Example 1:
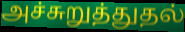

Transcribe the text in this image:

அச்சுறுத்துதல்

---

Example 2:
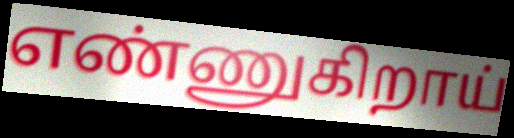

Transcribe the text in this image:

எண்ணுகிறாய்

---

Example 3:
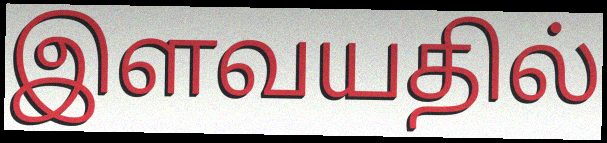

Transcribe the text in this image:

இளவயதில்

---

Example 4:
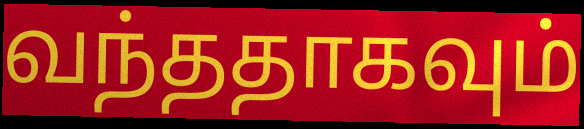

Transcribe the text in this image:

வந்ததாகவும்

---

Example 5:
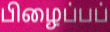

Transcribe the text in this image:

பிழைப்பப்